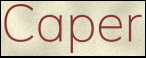
Caper